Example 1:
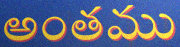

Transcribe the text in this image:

అంతము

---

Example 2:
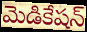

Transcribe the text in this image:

మెడికేషన్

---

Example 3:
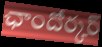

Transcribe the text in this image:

ఛాందోర్కర్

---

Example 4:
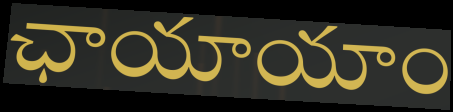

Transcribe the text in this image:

ఛాయాయాం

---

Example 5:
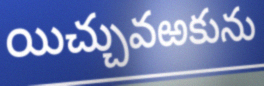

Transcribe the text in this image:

యిచ్చువఱకును